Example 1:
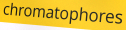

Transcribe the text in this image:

chromatophores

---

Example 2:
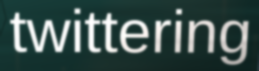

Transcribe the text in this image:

twittering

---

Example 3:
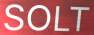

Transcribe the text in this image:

SOLT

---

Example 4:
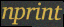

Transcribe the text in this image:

nprint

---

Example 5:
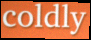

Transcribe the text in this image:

coldly